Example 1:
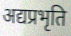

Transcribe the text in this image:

अद्यप्रभृति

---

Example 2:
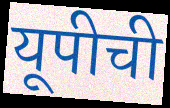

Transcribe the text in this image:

यूपीची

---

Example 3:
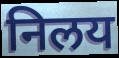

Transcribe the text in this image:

निलय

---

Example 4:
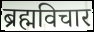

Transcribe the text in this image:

ब्रह्मविचार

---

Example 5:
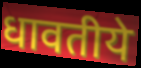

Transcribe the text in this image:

धावतीये